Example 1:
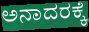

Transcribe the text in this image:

ಅನಾದರಕ್ಕೆ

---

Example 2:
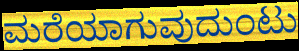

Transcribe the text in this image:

ಮರೆಯಾಗುವುದುಂಟು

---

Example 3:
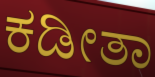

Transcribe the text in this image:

ಕಡೀತಾ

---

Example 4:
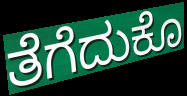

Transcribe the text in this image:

ತೆಗೆದುಕೊ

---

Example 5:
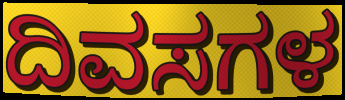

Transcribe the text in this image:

ದಿವಸಗಳ